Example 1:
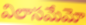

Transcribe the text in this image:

విలాసమేమో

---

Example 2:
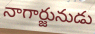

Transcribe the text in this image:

నాగార్జునుడు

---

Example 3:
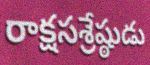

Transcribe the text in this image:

రాక్షసశ్రేష్ఠుడు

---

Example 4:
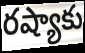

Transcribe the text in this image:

రష్యాకు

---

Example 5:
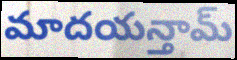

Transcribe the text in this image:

మాదయన్తామ్